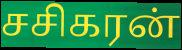
சசிகரன்